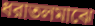
ধরাতলমাঝে